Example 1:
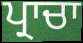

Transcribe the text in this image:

ਪ੍ਰਾਚਾ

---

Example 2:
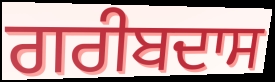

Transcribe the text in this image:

ਗਰੀਬਦਾਸ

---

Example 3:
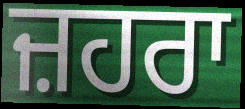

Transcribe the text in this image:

ਜ਼ਹਰਾ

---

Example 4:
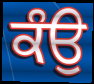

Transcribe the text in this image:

ਕੰਉ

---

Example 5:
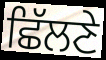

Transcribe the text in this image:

ਛਿੱਲਣੇ